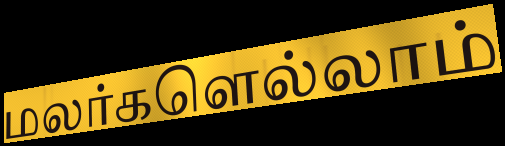
மலர்களெல்லாம்